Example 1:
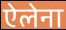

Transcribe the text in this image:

ऐलेना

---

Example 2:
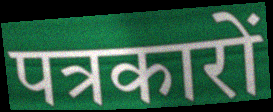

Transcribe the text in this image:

पत्रकारों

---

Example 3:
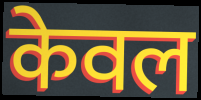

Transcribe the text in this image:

केवल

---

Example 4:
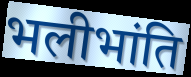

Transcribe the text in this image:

भलीभांति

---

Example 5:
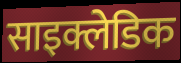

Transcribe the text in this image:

साइक्लेडिक